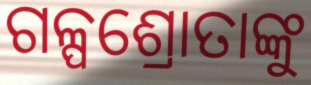
ଗଳ୍ପଶ୍ରୋତାଙ୍କୁ